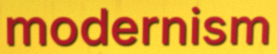
modernism